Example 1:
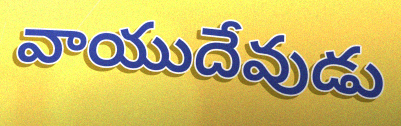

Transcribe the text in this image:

వాయుదేవుడు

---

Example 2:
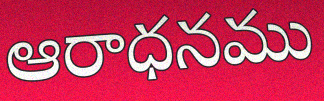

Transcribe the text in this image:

ఆరాధనము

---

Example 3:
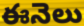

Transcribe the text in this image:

ఈనెలు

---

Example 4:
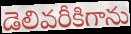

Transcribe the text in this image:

డెలివరీకిగాను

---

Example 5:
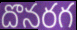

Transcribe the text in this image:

దొనరగ